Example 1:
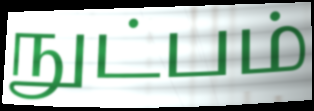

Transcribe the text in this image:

நுட்பம்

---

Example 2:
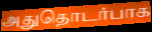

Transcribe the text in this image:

அதுதொடர்பாக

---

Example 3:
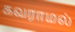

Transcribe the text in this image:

கவராமல்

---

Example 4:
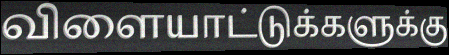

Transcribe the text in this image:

விளையாட்டுக்களுக்கு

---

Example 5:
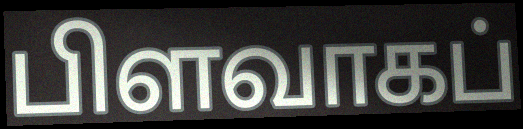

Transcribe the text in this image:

பிளவாகப்